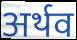
अर्थव